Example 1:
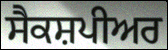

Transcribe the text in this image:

ਸੈਕਸ਼ਪੀਅਰ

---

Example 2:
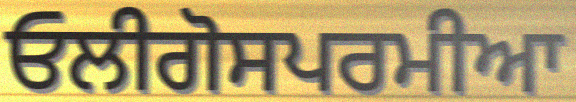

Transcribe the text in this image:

ਓਲੀਗੋਸਪਰਮੀਆ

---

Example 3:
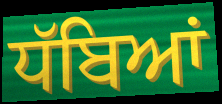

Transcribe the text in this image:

ਧੱਬਿਆਂ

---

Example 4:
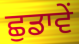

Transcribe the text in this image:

ਛੁਡਾਵੇਂ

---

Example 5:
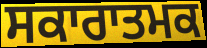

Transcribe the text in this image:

ਸਕਾਰਾਤਮਕ